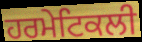
ਹਰਮੇਟਿਕਲੀ